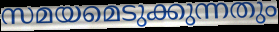
സമയമെടുക്കുന്നതും